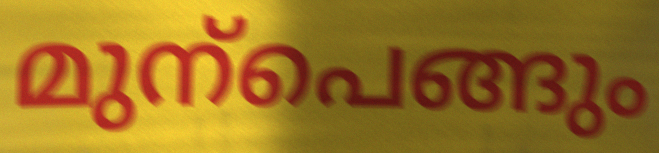
മുന്പെങ്ങും